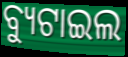
ବ୍ୟୁଟାଇଲ